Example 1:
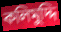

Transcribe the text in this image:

কলিমুদ্দি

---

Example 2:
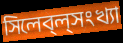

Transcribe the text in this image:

সিলেব্‌ল্‌সংখ্যা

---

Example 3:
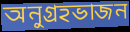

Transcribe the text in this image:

অনুগ্রহভাজন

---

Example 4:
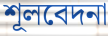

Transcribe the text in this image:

শূলবেদনা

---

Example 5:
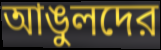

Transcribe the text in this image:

আঙুলদের